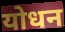
योधन